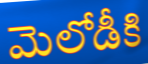
మెలోడీకి